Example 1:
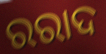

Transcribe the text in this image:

ରରାଦ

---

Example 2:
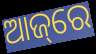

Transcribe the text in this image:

ଆଜ୍‌ରେ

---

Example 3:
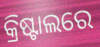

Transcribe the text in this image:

କ୍ରିଷ୍ଟାଲରେ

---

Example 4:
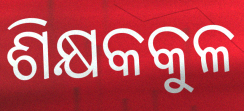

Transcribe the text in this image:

ଶିକ୍ଷକକୁଳ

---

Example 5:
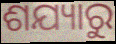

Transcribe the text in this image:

ଶଯ୍ୟାରୁ